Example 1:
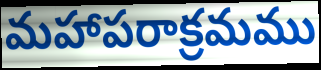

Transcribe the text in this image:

మహాపరాక్రమము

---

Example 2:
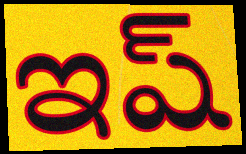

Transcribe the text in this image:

ఇష్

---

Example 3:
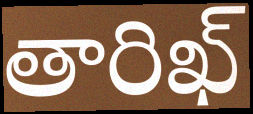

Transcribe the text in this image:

తారిఖ్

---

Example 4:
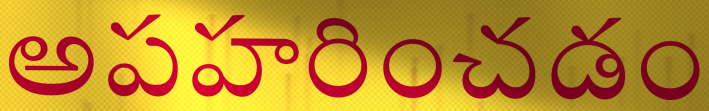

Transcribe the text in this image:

అపహరించడం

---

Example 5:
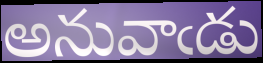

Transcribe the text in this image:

అనువాఁడు